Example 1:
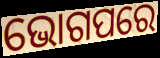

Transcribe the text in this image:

ଭୋଗପରେ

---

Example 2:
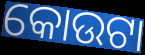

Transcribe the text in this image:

କୋଉଟା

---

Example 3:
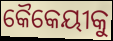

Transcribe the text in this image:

କୈକେୟୀକୁ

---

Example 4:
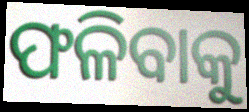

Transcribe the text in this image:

ଫଳିବାକୁ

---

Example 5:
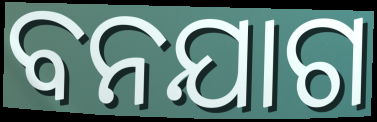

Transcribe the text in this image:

ବନଯାଗ